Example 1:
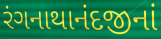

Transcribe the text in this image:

રંગનાથાનંદજીનાં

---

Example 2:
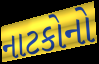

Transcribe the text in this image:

નાટકોનો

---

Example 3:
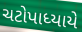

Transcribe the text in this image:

ચટોપાધ્યાયે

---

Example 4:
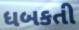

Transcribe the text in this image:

ધબકતી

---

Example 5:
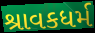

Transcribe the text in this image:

શ્રાવકધર્મ